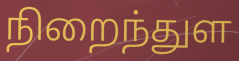
நிறைந்துள